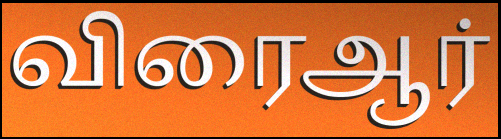
விரைஆர்